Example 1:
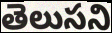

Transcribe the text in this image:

తెలుసని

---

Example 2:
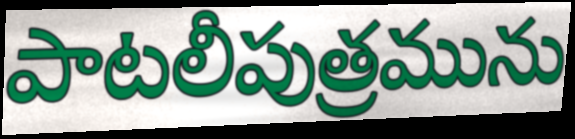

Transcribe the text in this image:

పాటలీపుత్రమును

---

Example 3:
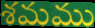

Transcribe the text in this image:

శమము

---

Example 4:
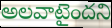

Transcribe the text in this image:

అలవాటైందని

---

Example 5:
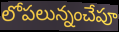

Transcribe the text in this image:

లోపలున్నంచేపూ